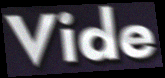
Vide